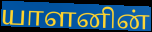
யாளனின்